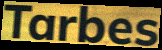
Tarbes